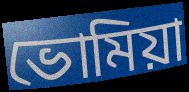
ভোমিয়া